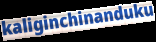
kaliginchinanduku